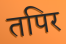
तपिर